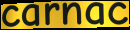
carnac